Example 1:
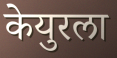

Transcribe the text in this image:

केयुरला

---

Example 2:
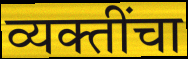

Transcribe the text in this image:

व्यक्‍तींचा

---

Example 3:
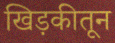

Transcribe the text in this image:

खिड़कीतून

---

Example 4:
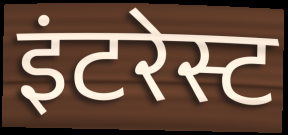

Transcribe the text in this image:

इंटरेस्ट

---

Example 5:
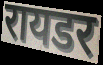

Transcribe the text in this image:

रायडर